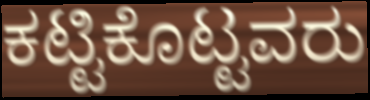
ಕಟ್ಟಿಕೊಟ್ಟವರು